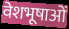
वेशभूषाओं